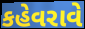
કહેવરાવે